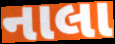
નાલા